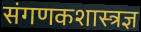
संगणकशास्त्रज्ञ